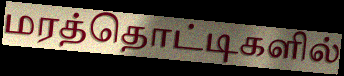
மரத்தொட்டிகளில்